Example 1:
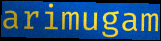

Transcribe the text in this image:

arimugam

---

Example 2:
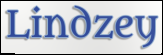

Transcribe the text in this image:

Lindzey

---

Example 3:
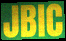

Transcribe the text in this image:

JBIC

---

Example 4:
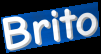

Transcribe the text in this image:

Brito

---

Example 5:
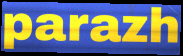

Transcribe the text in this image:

parazh